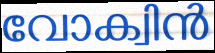
വോക്വിൻ